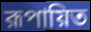
রূপায়িত